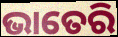
ଭାତେରି